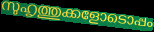
സുഹൃത്തുക്കളോടൊപ്പം